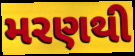
મરણથી